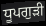
ਧੂਪਗੁੜੀ